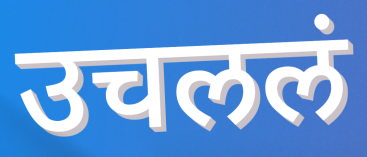
उचललं